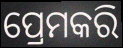
ପ୍ରେମକରି